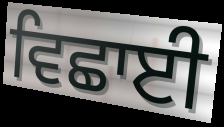
ਵਿਛਾਈ